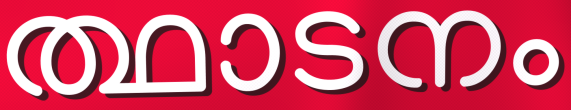
ത്ഥാടനം